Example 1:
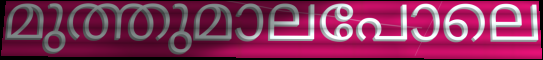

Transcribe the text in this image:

മുത്തുമാലപോലെ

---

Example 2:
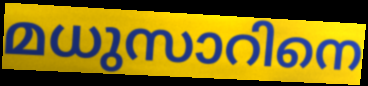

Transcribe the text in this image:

മധുസാറിനെ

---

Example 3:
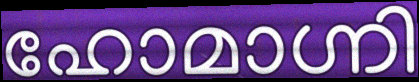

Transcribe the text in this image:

ഹോമാഗ്നി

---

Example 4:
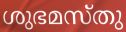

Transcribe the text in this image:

ശുഭമസ്തു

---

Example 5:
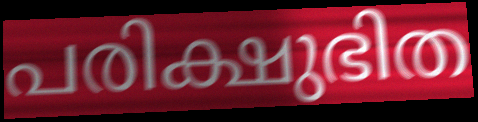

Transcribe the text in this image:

പരിക്ഷുഭിത